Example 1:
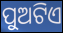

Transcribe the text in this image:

ପୁଅଟିଏ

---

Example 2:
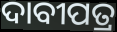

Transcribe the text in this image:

ଦାବୀପତ୍ର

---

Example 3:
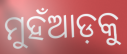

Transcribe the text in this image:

ମୁହଁଆଡ଼କୁ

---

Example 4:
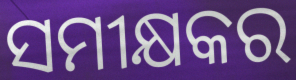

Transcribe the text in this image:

ସମୀକ୍ଷକର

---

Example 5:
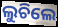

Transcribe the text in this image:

ଲୁଚିଲେ